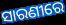
ସାରଣୀରେ